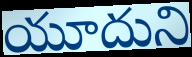
యూదుని